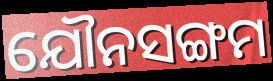
ଯୌନସଙ୍ଗମ